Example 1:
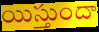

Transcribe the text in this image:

యిస్తుందా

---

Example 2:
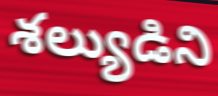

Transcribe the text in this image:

శల్యుడిని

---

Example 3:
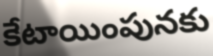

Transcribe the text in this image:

కేటాయింపునకు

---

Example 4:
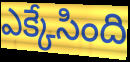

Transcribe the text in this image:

ఎక్కేసింది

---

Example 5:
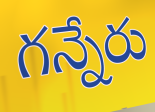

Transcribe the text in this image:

గన్నేరు